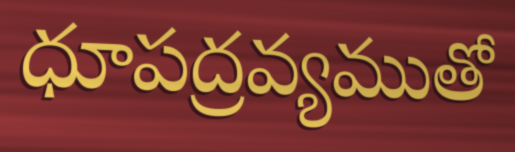
ధూపద్రవ్యముతో